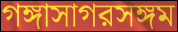
গঙ্গাসাগরসঙ্গম